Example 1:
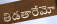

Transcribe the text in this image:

తిడతారేమో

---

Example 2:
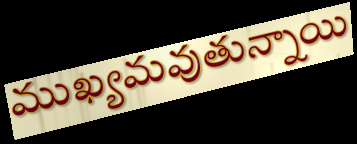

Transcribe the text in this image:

ముఖ్యమవుతున్నాయి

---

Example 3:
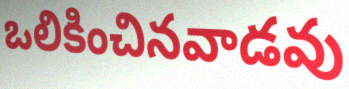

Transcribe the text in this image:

ఒలికించినవాడవు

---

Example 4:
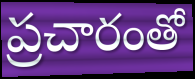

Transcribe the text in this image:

ప్రచారంతో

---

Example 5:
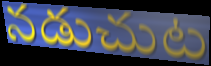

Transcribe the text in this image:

నడుచుట